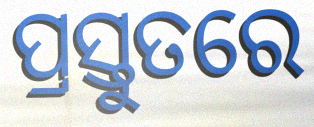
ପ୍ରସ୍ତୁତରେ